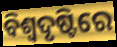
ବିଶ୍ଵଦୃଷ୍ଟିରେ